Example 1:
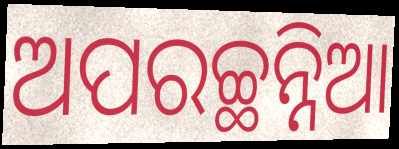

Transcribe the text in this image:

ଅପରଚ୍ଛନ୍ନିଆ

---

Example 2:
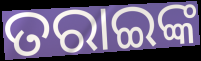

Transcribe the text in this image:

ତରାଇଙ୍କ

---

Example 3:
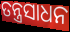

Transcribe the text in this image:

ତନ୍ତ୍ରସାଧନ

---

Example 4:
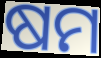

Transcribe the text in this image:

ଷମ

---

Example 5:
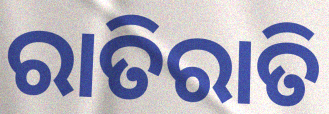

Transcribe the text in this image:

ରାତିରାତି